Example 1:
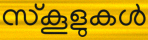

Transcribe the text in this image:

സ്കൂളുകൾ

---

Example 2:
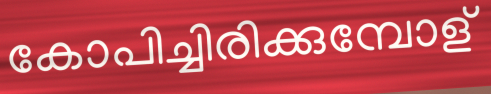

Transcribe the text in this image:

കോപിച്ചിരിക്കുമ്പോള്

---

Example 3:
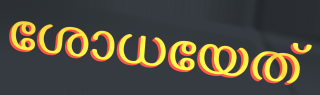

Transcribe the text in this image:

ശോധയേത്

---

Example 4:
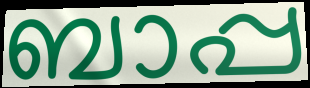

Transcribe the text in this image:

ബാപ്പ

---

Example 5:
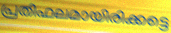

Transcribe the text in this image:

പ്രതിഫലമായിരിക്കട്ടെ